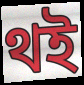
থই